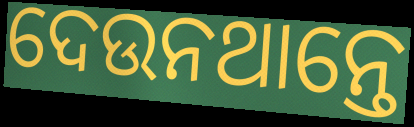
ଦେଉନଥାନ୍ତେ